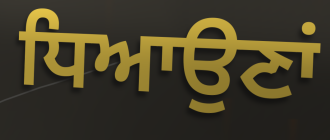
ਧਿਆਉਣਾਂ